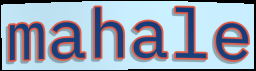
mahale